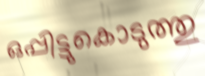
ഒപ്പിട്ടുകൊടുത്തു